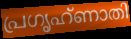
പ്രഗൃഹ്ണാതി